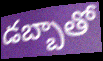
డబ్బాతో